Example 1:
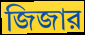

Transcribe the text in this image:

জিজার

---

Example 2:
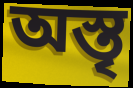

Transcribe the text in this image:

অস্তৃ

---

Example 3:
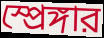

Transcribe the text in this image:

স্প্রেঙ্গার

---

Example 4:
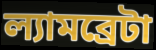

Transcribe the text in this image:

ল্যামব্রেটা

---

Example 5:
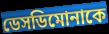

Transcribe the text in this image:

ডেসডিমোনাকে